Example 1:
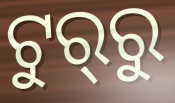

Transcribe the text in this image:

ଟୁର୍‍ରୁ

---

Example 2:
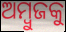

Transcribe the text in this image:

ଅମ୍ବୁଜକୁ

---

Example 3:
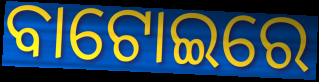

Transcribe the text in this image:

ବାଟୋଇରେ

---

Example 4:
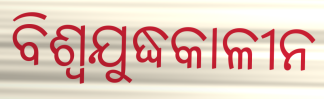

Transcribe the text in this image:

ବିଶ୍ୱଯୁଦ୍ଧକାଳୀନ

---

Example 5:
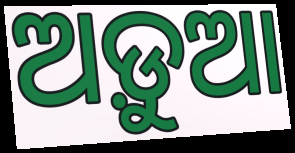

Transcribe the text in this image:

ଅଡ଼ୁଆ